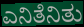
ಎನಿತೆನಿತು